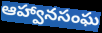
ఆహ్వానసంఘ